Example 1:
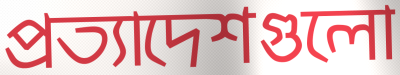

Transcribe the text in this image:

প্রত্যাদেশগুলো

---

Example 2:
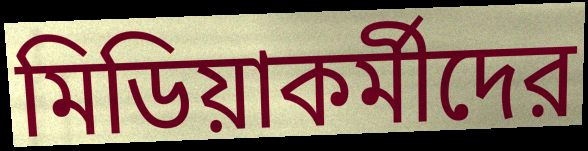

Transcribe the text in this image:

মিডিয়াকর্মীদের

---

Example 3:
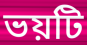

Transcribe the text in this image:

ভয়টি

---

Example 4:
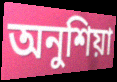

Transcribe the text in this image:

অনুশিয়া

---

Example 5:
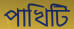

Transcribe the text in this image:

পাখিটি